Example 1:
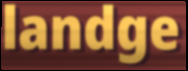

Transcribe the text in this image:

landge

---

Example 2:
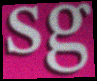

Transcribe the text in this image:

sg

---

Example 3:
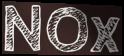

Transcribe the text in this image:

NOx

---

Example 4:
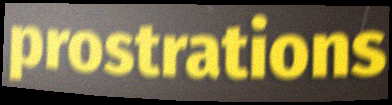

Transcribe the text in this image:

prostrations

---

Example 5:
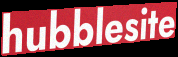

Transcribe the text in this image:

hubblesite